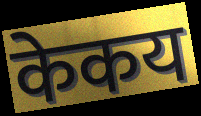
केकय